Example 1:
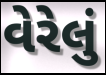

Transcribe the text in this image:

વેરેલું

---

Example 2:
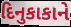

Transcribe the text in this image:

દિનુકાકાને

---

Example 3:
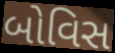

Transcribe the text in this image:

બોવિસ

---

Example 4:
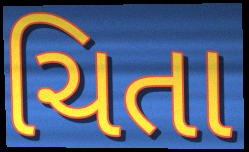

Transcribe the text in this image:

ચિતા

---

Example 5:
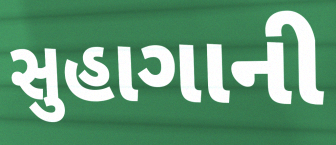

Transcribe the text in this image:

સુહાગાની